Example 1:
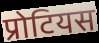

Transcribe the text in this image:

प्रोटियस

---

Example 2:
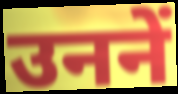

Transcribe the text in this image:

उननें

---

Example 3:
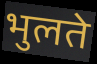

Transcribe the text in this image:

भुलते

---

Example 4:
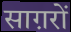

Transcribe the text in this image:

साग़रों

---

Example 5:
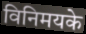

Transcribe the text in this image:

विनिमयके